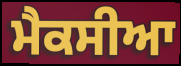
ਮੈਕਸੀਆ